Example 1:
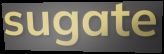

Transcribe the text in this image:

sugate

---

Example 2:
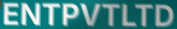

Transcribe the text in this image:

ENTPVTLTD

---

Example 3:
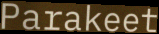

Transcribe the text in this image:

Parakeet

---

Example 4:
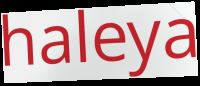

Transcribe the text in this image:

haleya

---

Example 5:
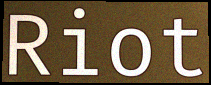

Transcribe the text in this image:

Riot